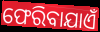
ଫେରିବାଯାଏଁ